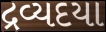
દ્રવ્યદયા